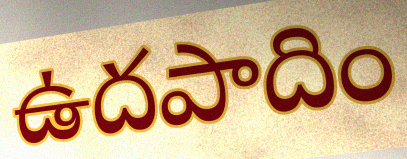
ఉదపాదిం